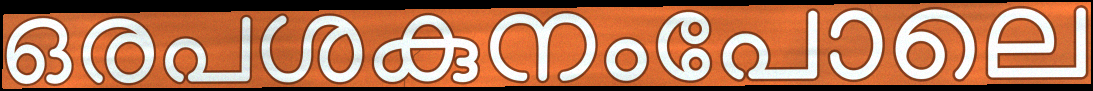
ഒരപശകുനംപോലെ